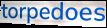
torpedoes